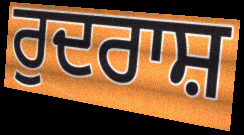
ਰੁਦਰਾਸ਼